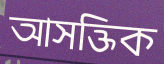
আসক্তিক